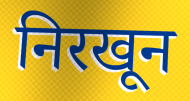
निरखून